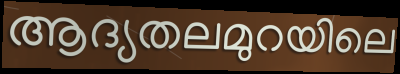
ആദ്യതലമുറയിലെ